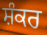
ਸ਼ੰਕਰ